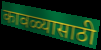
कावळ्यासाठी